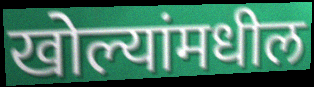
खोल्यांमधील